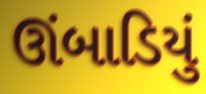
ઊંબાડિયું